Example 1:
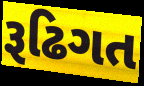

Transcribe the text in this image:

રૂઢિગત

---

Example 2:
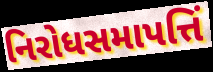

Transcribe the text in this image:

નિરોધસમાપત્તિં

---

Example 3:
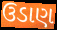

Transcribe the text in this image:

ઉડાણ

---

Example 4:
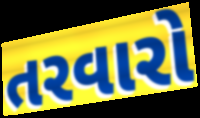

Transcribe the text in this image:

તરવારો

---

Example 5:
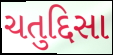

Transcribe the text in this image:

ચતુદ્દિસા